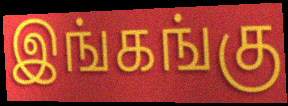
இங்கங்கு